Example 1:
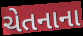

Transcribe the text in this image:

ચેતનાના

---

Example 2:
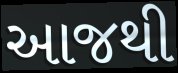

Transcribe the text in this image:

આજથી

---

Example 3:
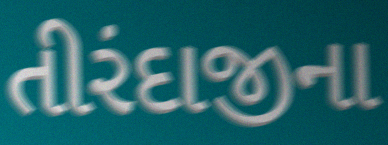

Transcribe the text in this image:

તીરંદાજીના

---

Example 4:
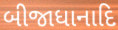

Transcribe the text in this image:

બીજાધાનાદિ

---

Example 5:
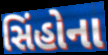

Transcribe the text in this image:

સિંહોના